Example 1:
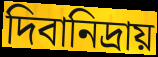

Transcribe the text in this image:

দিবানিদ্রায়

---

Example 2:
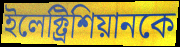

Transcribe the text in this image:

ইলেক্ট্রিশিয়ানকে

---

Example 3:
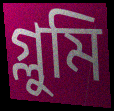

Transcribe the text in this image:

গ্লুমি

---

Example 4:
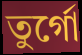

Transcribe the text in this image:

তুর্গো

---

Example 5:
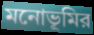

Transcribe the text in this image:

মনোভূমির